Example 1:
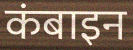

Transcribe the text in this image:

कंबाइन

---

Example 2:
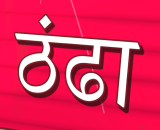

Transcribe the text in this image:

ठंढा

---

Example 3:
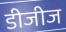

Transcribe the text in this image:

डीजीज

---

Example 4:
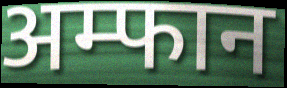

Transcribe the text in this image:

अम्फान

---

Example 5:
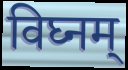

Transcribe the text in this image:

विघ्नम्